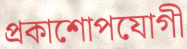
প্রকাশোপযোগী